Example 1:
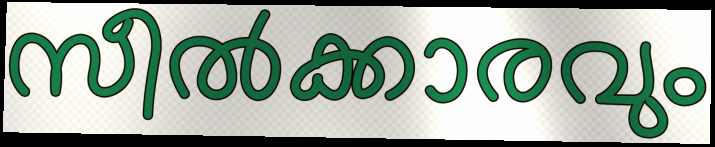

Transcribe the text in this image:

സീൽക്കാരവും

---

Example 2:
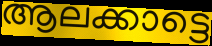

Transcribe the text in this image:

ആലക്കാട്ടെ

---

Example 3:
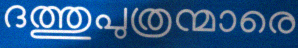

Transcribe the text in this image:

ദത്തുപുത്രന്മാരെ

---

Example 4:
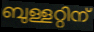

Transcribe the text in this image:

ബുള്ളറ്റിന്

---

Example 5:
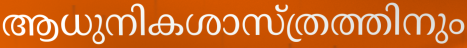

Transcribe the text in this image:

ആധുനികശാസ്ത്രത്തിനും